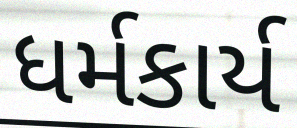
ધર્મકાર્ય